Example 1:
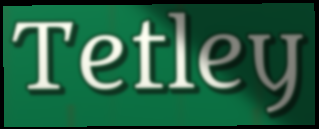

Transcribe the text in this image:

Tetley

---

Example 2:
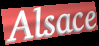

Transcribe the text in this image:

Alsace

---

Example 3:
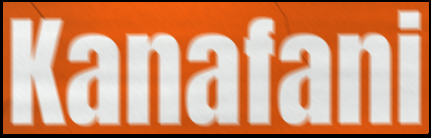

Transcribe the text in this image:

Kanafani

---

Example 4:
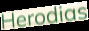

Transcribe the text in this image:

Herodias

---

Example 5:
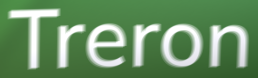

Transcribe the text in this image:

Treron